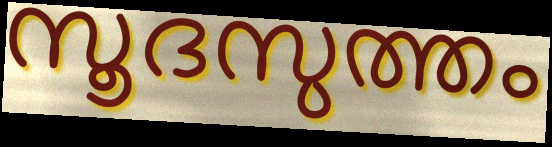
സൂദസുത്തം